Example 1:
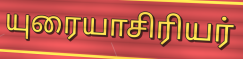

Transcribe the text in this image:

யுரையாசிரியர்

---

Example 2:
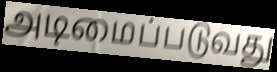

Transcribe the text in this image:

அடிமைப்படுவது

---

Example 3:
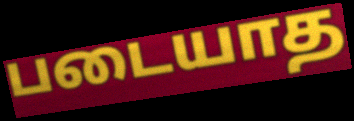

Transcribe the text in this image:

படையாத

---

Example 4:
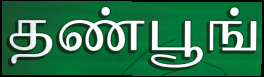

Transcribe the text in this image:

தண்பூங்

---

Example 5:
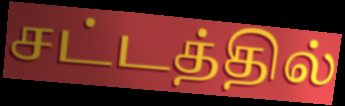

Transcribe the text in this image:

சட்டத்தில்